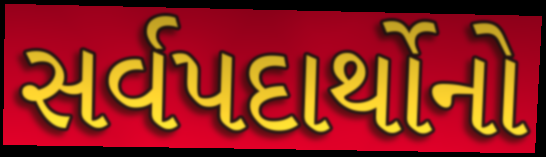
સર્વપદાર્થોનો